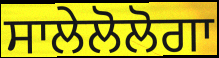
ਸਾਲੇਲੋਲੋਗਾ